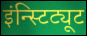
इंन्स्टिट्यूट